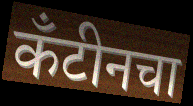
कँटीनचा